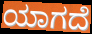
ಯಾಗದೆ